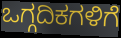
ಒಗ್ಗದಿಕಗಳಿಗೆ